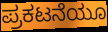
ಪ್ರಕಟನೆಯೂ